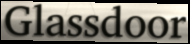
Glassdoor